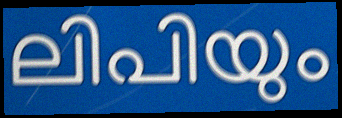
ലിപിയും